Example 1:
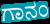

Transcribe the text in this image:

ಗಾನಂ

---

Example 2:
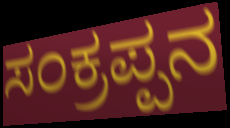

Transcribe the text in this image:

ಸಂಕ್ರಪ್ಪನ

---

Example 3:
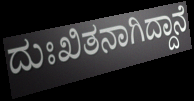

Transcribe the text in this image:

ದುಃಖಿತನಾಗಿದ್ದಾನೆ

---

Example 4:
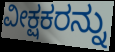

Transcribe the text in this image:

ವೀಕ್ಷಕರನ್ನು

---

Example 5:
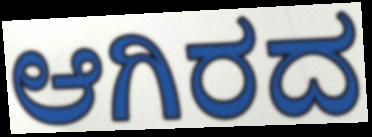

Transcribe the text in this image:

ಆಗಿರದ